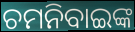
ଚମନିବାଇଙ୍କ